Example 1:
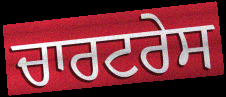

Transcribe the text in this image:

ਚਾਰਟਰੇਸ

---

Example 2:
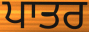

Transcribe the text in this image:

ਪਾਤਰ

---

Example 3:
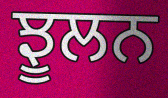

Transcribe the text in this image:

ਝੂਲਨ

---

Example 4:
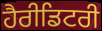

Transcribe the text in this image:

ਹੈਰੀਡਿਟਰੀ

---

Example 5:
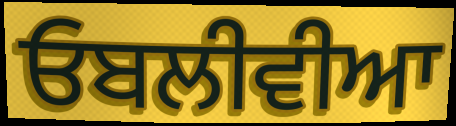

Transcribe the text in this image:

ਓਬਲੀਵੀਆ